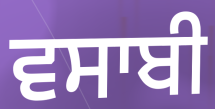
ਵਸਾਬੀ